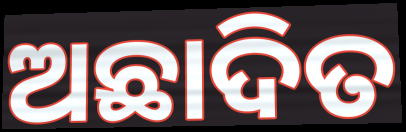
ଅଛାଦିତ